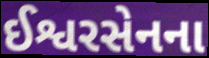
ઈશ્વરસેનના